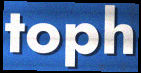
toph